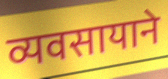
व्यवसायाने